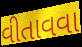
વીતાવવા